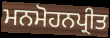
ਮਨਮੋਹਨਪ੍ਰੀਤ